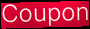
Coupon